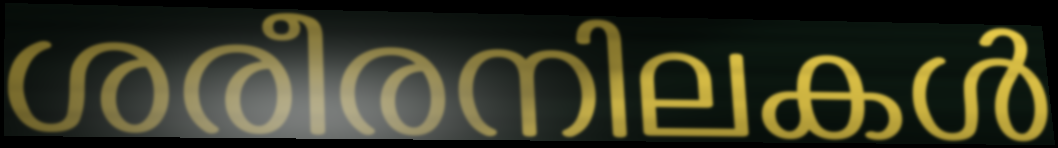
ശരീരനിലകൾ